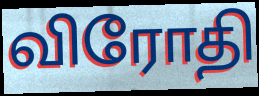
விரோதி